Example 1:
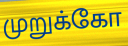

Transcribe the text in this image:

முறுக்கோ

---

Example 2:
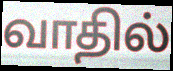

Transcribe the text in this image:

வாதில்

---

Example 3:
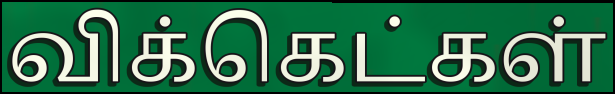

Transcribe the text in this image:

விக்கெட்கள்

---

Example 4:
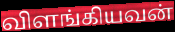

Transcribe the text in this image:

விளங்கியவன்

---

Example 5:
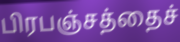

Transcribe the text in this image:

பிரபஞ்சத்தைச்